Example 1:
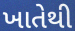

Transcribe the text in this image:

ખાતેથી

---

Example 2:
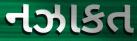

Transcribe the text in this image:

નઝાકત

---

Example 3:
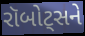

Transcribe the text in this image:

રૉબોટ્સને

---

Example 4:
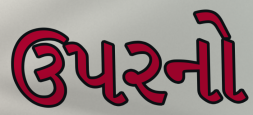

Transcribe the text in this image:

ઉપરનો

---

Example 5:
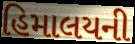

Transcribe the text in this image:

હિમાલયની